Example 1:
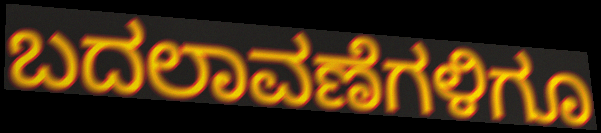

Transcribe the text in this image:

ಬದಲಾವಣೆಗಳಿಗೂ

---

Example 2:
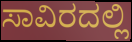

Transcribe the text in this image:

ಸಾವಿರದಲ್ಲಿ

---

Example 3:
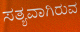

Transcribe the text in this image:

ಸತ್ಯವಾಗಿರುವ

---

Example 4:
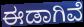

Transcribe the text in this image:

ಈಡಾಗಿವೆ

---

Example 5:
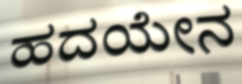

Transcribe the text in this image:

ಹದಯೇನ